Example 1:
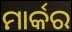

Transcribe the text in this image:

ମାର୍କର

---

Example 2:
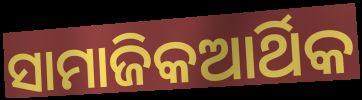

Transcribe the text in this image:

ସାମାଜିକଆର୍ଥିକ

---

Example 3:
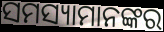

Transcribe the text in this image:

ସମସ୍ୟାମାନଙ୍କର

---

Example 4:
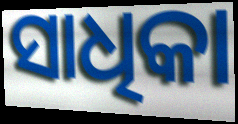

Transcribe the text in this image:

ସାଧିକା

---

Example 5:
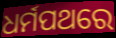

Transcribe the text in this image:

ଧର୍ମପଥରେ